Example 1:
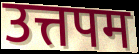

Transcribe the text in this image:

उत्तपम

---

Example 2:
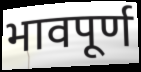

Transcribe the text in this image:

भावपूर्ण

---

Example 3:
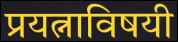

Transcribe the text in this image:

प्रयत्नाविषयी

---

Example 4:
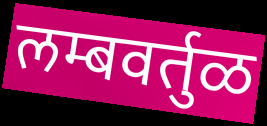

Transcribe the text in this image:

लम्बवर्तुळ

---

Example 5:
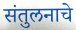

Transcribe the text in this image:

संतुलनाचे